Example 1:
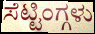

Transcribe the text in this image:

ಸೆಟ್ಟಿಂಗ್ಗಳು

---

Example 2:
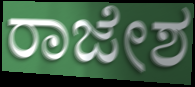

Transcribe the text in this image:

ರಾಜೇಶ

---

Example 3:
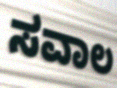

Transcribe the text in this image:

ಸವಾಲ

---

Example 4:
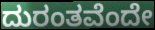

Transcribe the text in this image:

ದುರಂತವೆಂದೇ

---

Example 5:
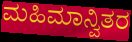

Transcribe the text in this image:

ಮಹಿಮಾನ್ವಿತರ